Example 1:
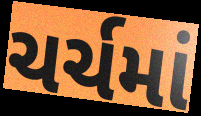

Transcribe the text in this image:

ચર્ચમાં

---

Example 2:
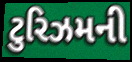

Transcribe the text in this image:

ટુરિઝમની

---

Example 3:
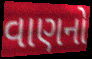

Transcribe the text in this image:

વાણનો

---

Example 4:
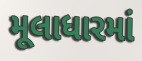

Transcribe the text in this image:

મૂલાધારમાં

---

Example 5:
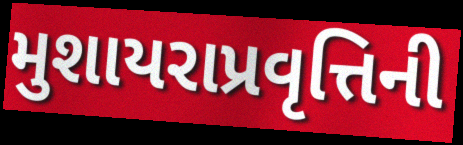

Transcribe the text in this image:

મુશાયરાપ્રવૃત્તિની